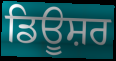
ਡਿਊਸ਼ਰ